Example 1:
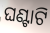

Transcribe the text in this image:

ଘଣ୍ଟାଟି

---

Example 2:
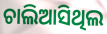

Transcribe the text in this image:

ଚାଲିଆସିଥିଲ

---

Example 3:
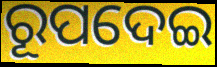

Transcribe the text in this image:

ରୂପଦେଇ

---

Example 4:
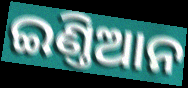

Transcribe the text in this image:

ଇଣ୍ତିଆନ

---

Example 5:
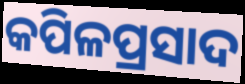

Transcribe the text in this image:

କପିଳପ୍ରସାଦ